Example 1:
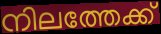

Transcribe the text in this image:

നിലത്തേക്ക്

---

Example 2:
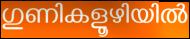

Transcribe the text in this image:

ഗുണികളൂഴിയിൽ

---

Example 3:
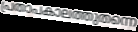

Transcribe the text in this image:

പ്രതാപകാലത്തുതന്നെ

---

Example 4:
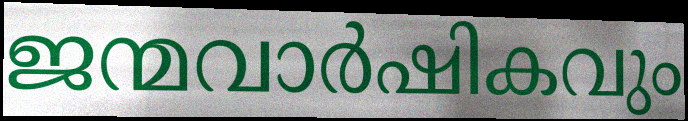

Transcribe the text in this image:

ജന്മവാർഷികവും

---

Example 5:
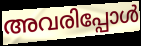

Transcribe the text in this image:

അവരിപ്പോൾ